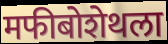
मफीबोशेथला